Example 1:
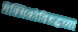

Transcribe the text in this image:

मेक्सिकोविरुद्धच्या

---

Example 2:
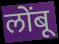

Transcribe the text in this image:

लोंबू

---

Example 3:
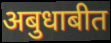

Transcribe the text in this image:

अबुधाबीत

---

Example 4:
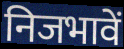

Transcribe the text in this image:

निजभावें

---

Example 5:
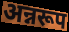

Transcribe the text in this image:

अन्नरूप